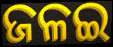
ଜଳଇ